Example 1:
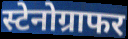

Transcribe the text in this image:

स्टेनोग्राफर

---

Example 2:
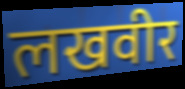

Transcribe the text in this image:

लखवीर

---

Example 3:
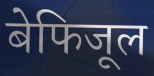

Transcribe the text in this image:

बेफिजूल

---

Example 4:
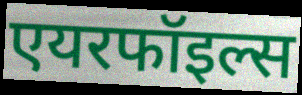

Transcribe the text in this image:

एयरफॉइल्स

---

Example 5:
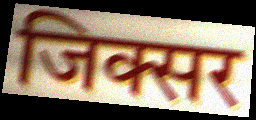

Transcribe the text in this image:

जिक्सर